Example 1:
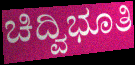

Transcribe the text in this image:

ಚಿದ್ವಿಭೂತಿ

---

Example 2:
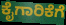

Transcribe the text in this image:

ಕೈಗಾರಿಕೆಗೆ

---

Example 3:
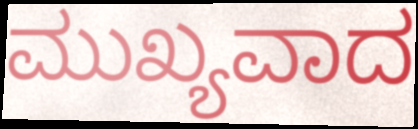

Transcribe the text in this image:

ಮುಖ್ಯವಾದ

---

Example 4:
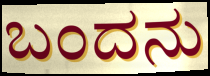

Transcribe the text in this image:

ಬಂದನು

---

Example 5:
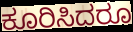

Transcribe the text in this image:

ಕೂರಿಸಿದರೂ